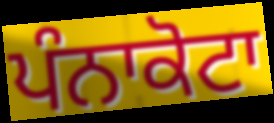
ਪੰਨਾਕੋਟਾ